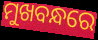
ମୁଖବନ୍ଧରେ